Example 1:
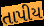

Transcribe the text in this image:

તાપીય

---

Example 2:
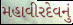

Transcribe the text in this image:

મહાવીરદેવનું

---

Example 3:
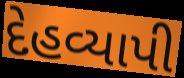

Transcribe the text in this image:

દેહવ્યાપી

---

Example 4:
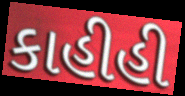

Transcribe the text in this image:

કાહીહી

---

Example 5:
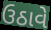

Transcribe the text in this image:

ઉઠાવે